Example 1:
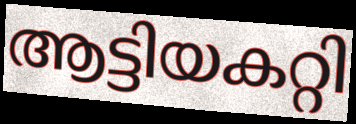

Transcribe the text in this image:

ആട്ടിയകറ്റി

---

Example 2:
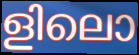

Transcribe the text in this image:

ളിലൊ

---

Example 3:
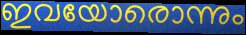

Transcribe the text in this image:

ഇവയോരൊന്നും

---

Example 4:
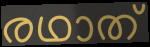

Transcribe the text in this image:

രഥാത്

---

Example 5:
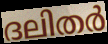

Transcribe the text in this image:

ദലിതർ